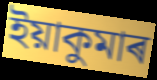
ইয়াকুমাৰ